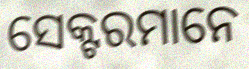
ସେକ୍ଟରମାନେ